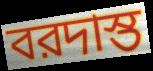
বরদাস্ত